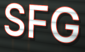
SFG